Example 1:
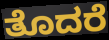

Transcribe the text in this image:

ತೊದರೆ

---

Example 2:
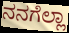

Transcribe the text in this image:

ನನಗೆಲ್ಲಾ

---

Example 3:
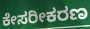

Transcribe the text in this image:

ಕೇಸರೀಕರಣ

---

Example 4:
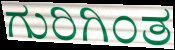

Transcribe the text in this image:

ಗುರಿಗಿಂತ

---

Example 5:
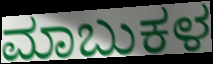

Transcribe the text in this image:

ಮಾಬುಕಳ